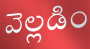
వెల్లడిం